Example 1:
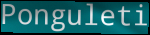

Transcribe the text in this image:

Ponguleti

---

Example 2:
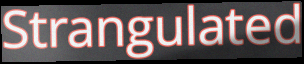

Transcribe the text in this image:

Strangulated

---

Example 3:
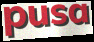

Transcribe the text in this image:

pusa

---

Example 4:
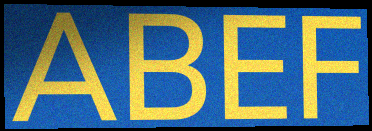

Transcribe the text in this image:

ABEF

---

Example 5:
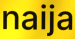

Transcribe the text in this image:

naija